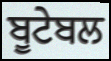
ਬੂਟੇਬਲ